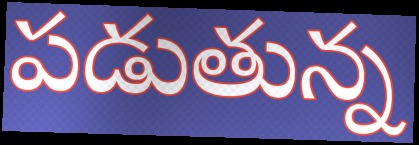
పడుతున్న